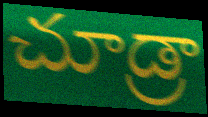
చూడ్రా